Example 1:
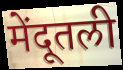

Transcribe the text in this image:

मेंदूतली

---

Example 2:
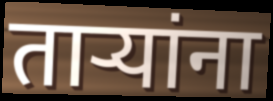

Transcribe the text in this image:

ताऱ्यांना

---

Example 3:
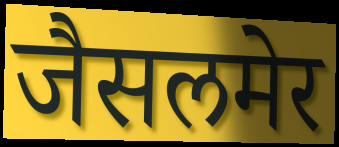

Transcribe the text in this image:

जैसलमेर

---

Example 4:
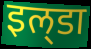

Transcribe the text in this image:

इल्डा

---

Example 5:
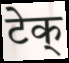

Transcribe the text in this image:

टेक्